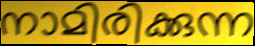
നാമിരിക്കുന്ന